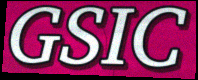
GSIC